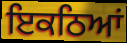
ਇਕਠਿਆਂ